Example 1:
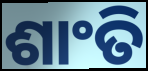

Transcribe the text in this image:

ଶାଂତି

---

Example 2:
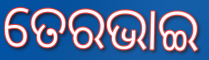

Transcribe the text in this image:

ତେରଭାଇ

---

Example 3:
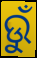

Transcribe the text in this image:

ଉୁଁ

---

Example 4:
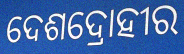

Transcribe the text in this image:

ଦେଶଦ୍ରୋହୀର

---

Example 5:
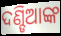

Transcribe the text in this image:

ଦଣ୍ଡିଆଙ୍କ